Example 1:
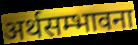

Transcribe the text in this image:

अर्थसम्भावना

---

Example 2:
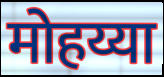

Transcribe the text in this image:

मोहय्या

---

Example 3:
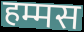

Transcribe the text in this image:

हम्मस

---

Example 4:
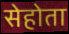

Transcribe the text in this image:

सेहोता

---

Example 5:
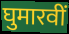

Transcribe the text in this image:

घुमारवीं